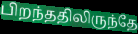
பிறந்ததிலிருந்தே